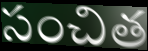
సంచిత